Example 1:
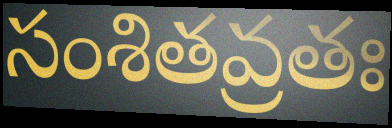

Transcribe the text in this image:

సంశితవ్రతః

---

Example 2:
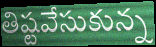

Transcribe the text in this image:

తిష్టవేసుకున్న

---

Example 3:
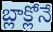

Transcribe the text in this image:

బ్లాక్లోనే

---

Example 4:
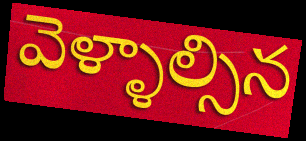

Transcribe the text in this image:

వెళ్ళాల్సిన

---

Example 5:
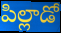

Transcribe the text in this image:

పిల్లాడో